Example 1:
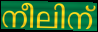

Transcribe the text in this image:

നീലിന്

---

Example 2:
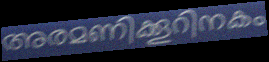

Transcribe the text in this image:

അരമണിക്കൂറിനകം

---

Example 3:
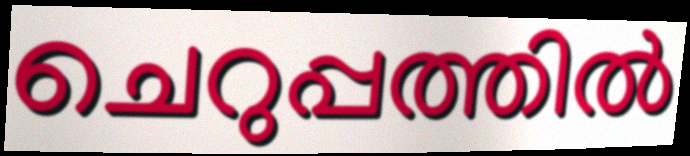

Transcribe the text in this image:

ചെറുപ്പത്തിൽ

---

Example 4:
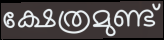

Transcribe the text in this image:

ക്ഷേത്രമുണ്ട്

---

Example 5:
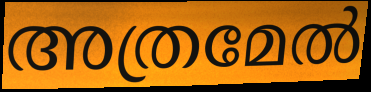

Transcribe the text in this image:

അത്രമേൽ